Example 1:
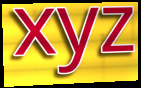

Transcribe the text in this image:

xyz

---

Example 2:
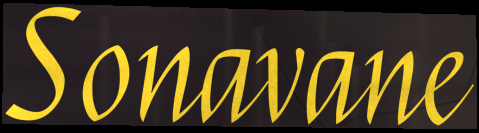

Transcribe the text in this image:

Sonavane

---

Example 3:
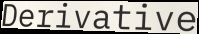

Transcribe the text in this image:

Derivative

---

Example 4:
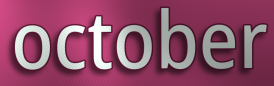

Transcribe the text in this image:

october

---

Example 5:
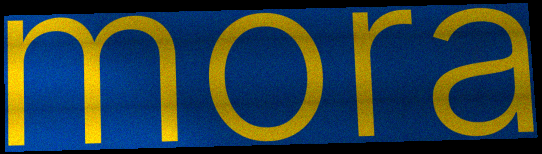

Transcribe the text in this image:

mora